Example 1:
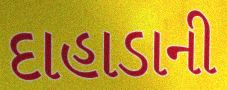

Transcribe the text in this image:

દાહાડાની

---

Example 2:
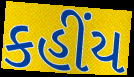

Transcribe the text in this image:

કહીંય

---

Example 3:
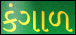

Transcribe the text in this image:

કંગાળ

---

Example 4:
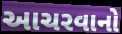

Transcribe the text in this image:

આચરવાનો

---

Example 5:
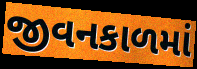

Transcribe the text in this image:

જીવનકાળમાં